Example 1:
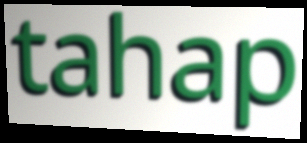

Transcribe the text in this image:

tahap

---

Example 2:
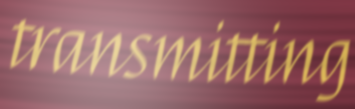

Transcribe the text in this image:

transmitting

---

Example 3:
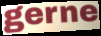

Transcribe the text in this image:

gerne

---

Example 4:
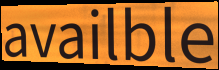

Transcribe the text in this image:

availble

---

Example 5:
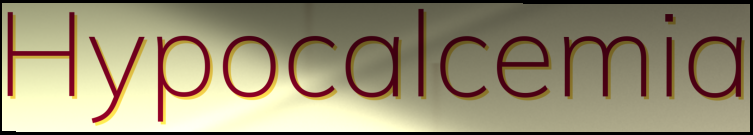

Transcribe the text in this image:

Hypocalcemia